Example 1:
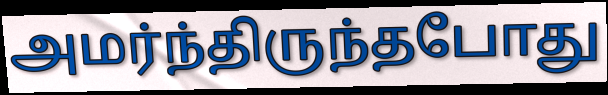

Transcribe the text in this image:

அமர்ந்திருந்தபோது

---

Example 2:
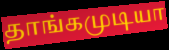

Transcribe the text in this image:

தாங்கமுடியா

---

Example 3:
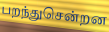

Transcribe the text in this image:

பறந்துசென்றன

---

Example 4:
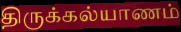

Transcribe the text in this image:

திருக்கல்யாணம்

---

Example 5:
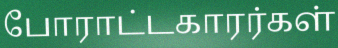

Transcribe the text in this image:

போராட்டகாரர்கள்